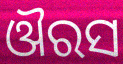
ଔରସ